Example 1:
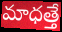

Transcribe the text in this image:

మాధత్తే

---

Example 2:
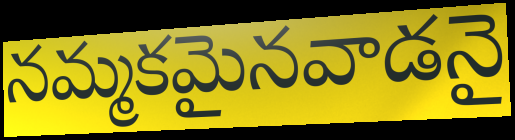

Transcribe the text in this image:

నమ్మకమైనవాడనై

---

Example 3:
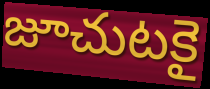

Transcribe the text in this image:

జూచుటకై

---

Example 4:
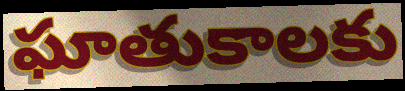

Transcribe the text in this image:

ఘాతుకాలకు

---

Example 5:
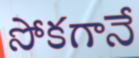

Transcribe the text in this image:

సోకగానే